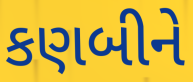
કણબીને